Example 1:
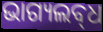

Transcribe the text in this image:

ଭାଗ୍ୟଲବ୍‌ଧ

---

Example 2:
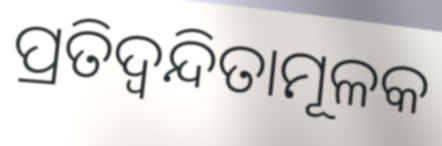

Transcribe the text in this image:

ପ୍ରତିଦ୍ୱନ୍ଦିତାମୂଳକ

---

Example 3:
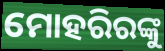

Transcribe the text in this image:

ମୋହରିରଙ୍କୁ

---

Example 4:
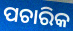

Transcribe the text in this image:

ପଚାରିକ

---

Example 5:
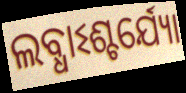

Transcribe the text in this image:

ଲବ୍ଧାଽଶ୍ଚର୍ଯ୍ୟୋ